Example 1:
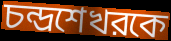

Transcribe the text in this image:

চন্দ্রশেখরকে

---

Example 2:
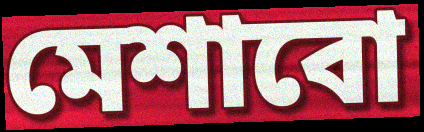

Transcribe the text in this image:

মেশাবো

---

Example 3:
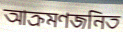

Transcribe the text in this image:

আক্রমণজনিত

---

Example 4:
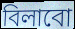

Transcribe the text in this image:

বিলাবো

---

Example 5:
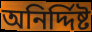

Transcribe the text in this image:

অনির্দ্দিষ্ট